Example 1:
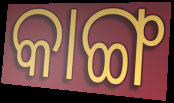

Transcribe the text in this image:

କାଙ୍ଗ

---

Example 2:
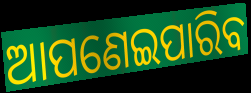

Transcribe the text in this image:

ଆପଣେଇପାରିବ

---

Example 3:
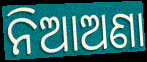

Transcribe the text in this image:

ନିଆଅଣା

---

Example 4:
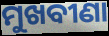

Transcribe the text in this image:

ମୁଖବୀଣା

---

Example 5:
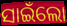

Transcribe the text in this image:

ସାଇଁଲୋ